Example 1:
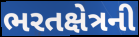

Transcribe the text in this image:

ભરતક્ષેત્રની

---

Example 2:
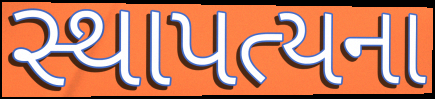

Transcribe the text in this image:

સ્થાપત્યના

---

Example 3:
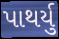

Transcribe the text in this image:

પાથર્યુ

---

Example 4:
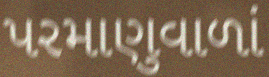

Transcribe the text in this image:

પરમાણુવાળાં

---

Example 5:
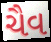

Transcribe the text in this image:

ચૈવ